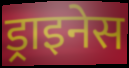
ड्राइनेस